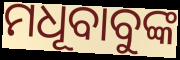
ମଧୂବାବୁଙ୍କ